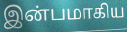
இன்பமாகிய